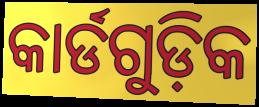
କାର୍ଡଗୁଡ଼ିକ